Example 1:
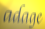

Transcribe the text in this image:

adage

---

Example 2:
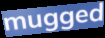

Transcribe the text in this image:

mugged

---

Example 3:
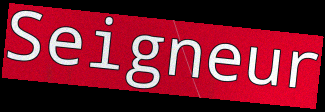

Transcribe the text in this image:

Seigneur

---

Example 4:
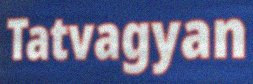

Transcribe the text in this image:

Tatvagyan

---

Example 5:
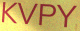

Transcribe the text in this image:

KVPY